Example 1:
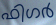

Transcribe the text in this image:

ഫിഗർ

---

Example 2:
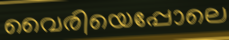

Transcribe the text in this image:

വൈരിയെപ്പോലെ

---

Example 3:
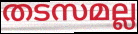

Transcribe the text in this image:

തടസമല്ല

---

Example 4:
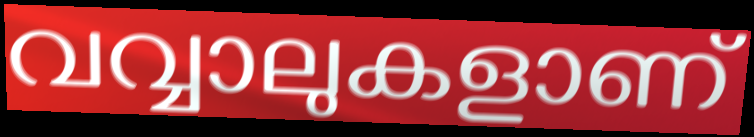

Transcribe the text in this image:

വവ്വാലുകളാണ്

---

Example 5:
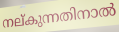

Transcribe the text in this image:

നല്കുന്നതിനാൽ